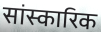
सांस्कारिक